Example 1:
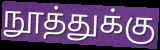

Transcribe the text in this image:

நூத்துக்கு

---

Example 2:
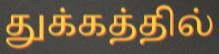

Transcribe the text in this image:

துக்கத்தில்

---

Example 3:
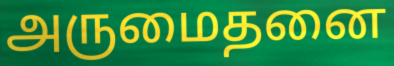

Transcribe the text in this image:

அருமைதனை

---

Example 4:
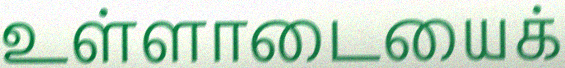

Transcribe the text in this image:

உள்ளாடையைக்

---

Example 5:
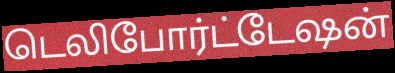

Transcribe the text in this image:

டெலிபோர்ட்டேஷன்